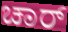
ಚಾರ್